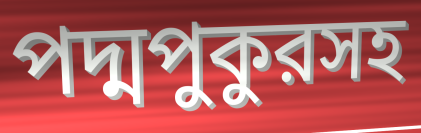
পদ্মপুকুরসহ